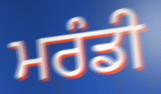
ਮਰੰਡੀ